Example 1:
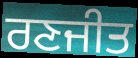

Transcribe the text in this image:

ਰਣਜੀਤ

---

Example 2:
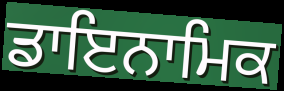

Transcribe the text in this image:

ਡਾਇਨਾਮਿਕ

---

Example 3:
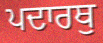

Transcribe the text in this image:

ਪਦਾਰਥੁ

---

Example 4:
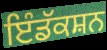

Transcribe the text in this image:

ਇੰਡੱਕਸ਼ਨ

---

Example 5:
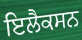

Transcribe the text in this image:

ਇਲੈਕਸਨ